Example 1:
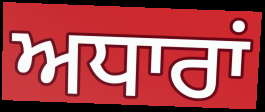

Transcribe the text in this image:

ਅਧਾਰਾਂ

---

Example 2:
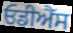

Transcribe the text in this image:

ਓਡੀਐੱਸ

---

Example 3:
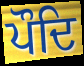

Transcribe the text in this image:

ਪੌਦਿ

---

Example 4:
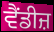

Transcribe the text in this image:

ਵੈਂਡੀਜ਼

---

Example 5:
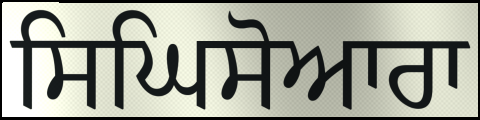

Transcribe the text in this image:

ਸਿਘਿਸੋਆਰਾ